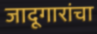
जादूगारांचा